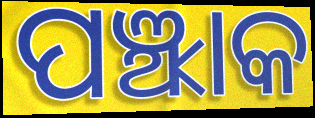
ପଞ୍ଝାକ